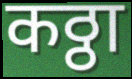
कठ्ठा